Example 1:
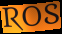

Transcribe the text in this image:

ROS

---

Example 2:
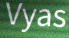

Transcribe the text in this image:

Vyas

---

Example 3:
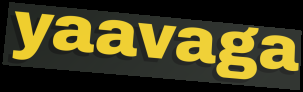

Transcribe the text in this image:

yaavaga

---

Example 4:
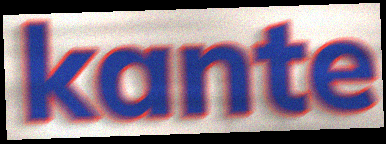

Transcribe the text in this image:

kante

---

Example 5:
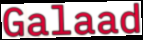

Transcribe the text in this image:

Galaad